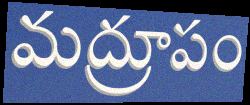
మద్రూపం